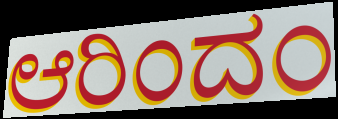
ಆರಿಂದಂ